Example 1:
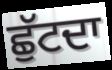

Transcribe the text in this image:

ਛੁੱਟਦਾ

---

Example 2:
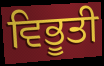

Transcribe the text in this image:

ਵਿਭੂਤੀ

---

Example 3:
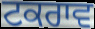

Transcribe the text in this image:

ਟਕਰਾਵ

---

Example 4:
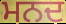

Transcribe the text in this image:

ਮਨਦ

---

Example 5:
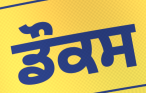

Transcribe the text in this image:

ਡੌਕਸ